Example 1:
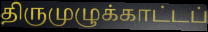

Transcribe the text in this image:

திருமுழுக்காட்டப்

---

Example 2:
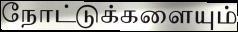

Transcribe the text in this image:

நோட்டுக்களையும்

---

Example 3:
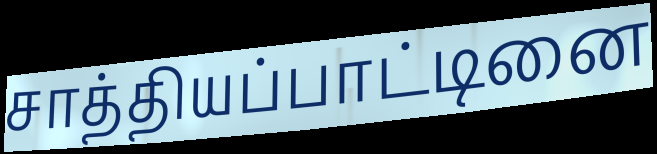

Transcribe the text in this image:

சாத்தியப்பாட்டினை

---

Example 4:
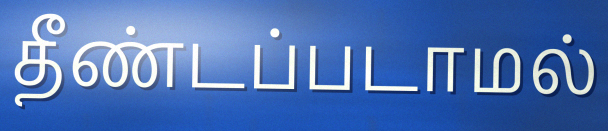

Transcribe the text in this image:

தீண்டப்படாமல்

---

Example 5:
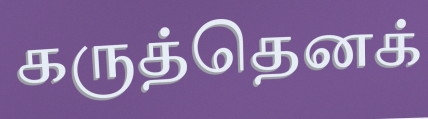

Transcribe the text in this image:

கருத்தெனக்